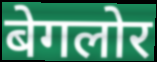
बेगलोर